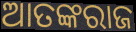
ଆତଙ୍କରାଜ